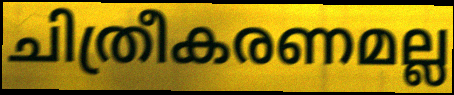
ചിത്രീകരണമല്ല